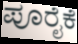
ಪೂರೈಕೆ